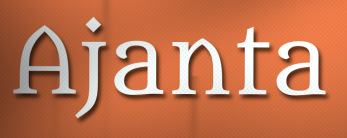
Ajanta